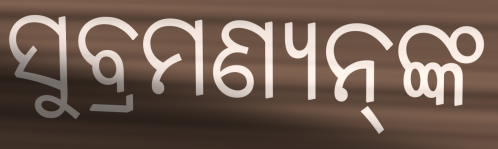
ସୁବ୍ରମଣ୍ୟନ୍‌ଙ୍କ